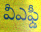
వీఎఫ్డీ